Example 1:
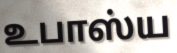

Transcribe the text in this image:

உபாஸ்ய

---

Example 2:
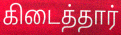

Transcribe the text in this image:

கிடைத்தார்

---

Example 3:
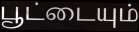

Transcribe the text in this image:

பூட்டையும்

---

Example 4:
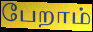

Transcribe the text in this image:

பேறாம்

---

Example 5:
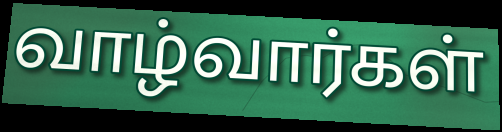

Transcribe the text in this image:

வாழ்வார்கள்